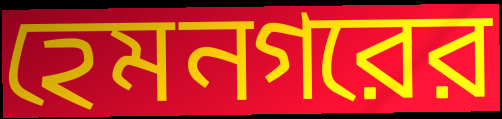
হেমনগরের